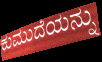
ಕುಮುದೆಯನ್ನು